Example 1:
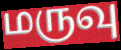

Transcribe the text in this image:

மருவு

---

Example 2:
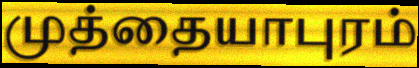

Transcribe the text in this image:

முத்தையாபுரம்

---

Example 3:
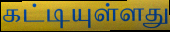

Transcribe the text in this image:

கட்டியுள்ளது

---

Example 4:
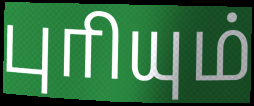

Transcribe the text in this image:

புரியும்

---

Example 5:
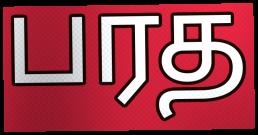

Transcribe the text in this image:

பரத